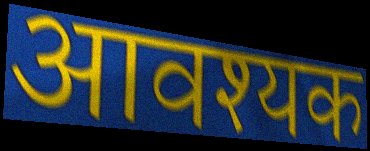
आवश्यक